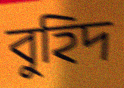
বুহিদ